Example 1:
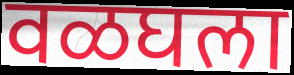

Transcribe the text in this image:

वळघला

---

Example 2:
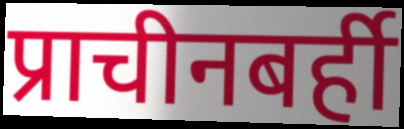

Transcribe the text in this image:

प्राचीनबर्ही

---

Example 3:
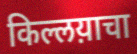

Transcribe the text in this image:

किल्लय़ाचा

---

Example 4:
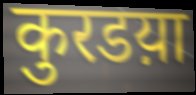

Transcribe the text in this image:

कुरडय़ा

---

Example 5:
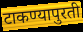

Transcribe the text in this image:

टाकण्यापुरती